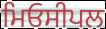
ਮਿਓਸੀਪਲ